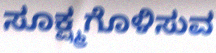
ಸೂಕ್ಷ್ಮಗೊಳಿಸುವ